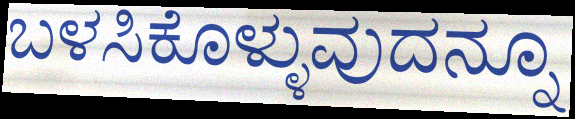
ಬಳಸಿಕೊಳ್ಳುವುದನ್ನೂ